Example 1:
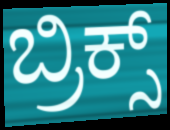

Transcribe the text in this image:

ಬ್ರಿಕ್ಸ್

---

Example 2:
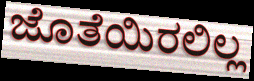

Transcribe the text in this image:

ಜೊತೆಯಿರಲಿಲ್ಲ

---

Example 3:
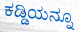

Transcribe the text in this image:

ಕಡ್ಡಿಯನ್ನೂ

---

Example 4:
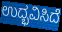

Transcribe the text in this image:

ಉದ್ಭವಿಸಿದೆ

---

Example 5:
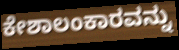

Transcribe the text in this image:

ಕೇಶಾಲಂಕಾರವನ್ನು